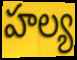
హల్య